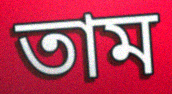
তাম